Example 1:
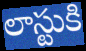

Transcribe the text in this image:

లాస్టుకి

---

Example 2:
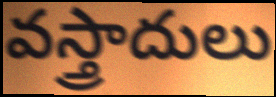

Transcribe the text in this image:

వస్త్రాదులు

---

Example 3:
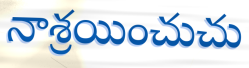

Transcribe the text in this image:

నాశ్రయించుచు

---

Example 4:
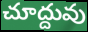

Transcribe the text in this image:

చూద్దువు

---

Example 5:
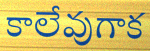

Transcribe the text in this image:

కాలేవుగాక